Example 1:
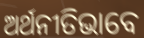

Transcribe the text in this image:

ଅର୍ଥନୀତିଭାବେ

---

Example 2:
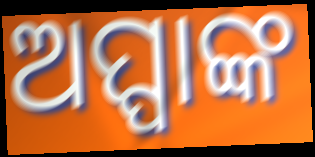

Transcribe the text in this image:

ଅପ୍ପାଙ୍କ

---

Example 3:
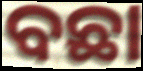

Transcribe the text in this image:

ବଛା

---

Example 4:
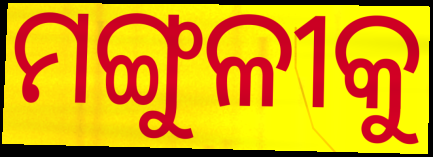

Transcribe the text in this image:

ମଙ୍ଗୁଳୀକୁ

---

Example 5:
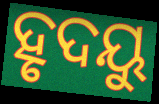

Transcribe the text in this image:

ହୃଦୟୁ